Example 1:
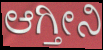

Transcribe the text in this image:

ಆಗ್ತೀನಿ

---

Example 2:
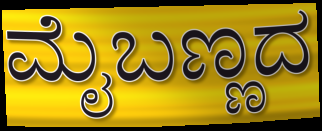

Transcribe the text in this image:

ಮೈಬಣ್ಣದ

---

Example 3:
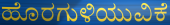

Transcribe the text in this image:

ಹೊರಗುಳಿಯುವಿಕೆ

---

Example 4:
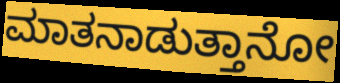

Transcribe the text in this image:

ಮಾತನಾಡುತ್ತಾನೋ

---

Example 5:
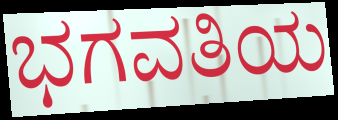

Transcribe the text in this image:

ಭಗವತಿಯ